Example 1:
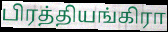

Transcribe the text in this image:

பிரத்தியங்கிரா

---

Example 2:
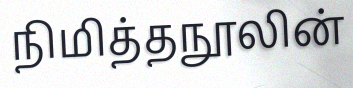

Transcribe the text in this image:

நிமித்தநூலின்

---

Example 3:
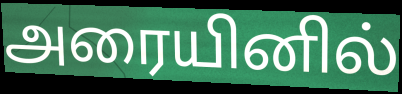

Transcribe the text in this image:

அரையினில்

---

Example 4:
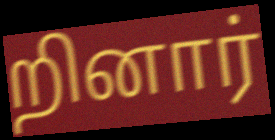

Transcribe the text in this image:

றினார்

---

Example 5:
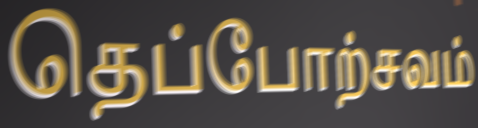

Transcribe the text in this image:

தெப்போற்சவம்